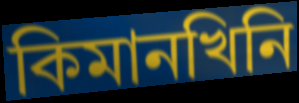
কিমানখিনি